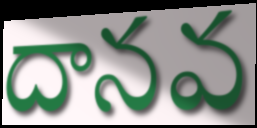
దానవ